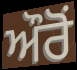
ਔਰੋਂ